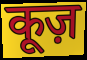
कूज़